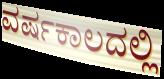
ವರ್ಷಕಾಲದಲ್ಲಿ